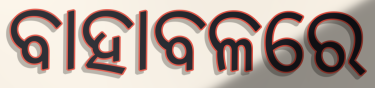
ବାହାବଳରେ